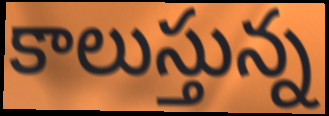
కాలుస్తున్న